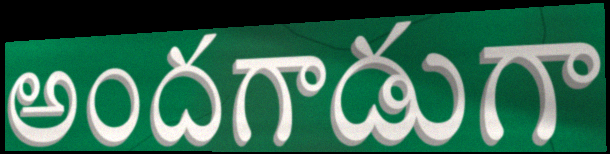
అందగాడుగా